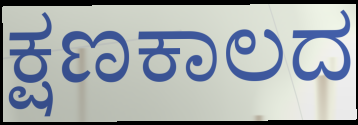
ಕ್ಷಣಕಾಲದ